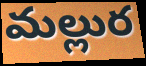
మల్లుర